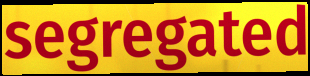
segregated